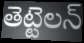
తెట్టెలన్